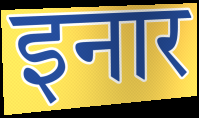
इनार